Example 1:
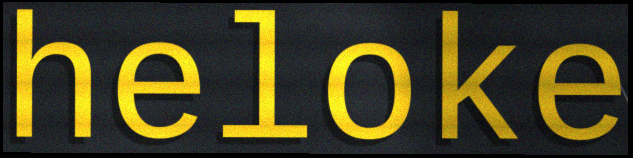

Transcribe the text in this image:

heloke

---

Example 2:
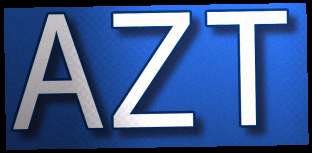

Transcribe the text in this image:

AZT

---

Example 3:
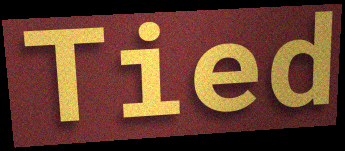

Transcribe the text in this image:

Tied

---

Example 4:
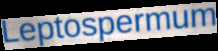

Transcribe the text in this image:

Leptospermum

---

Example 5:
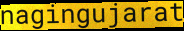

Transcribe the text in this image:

nagingujarat